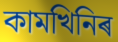
কামখিনিৰ